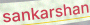
sankarshan